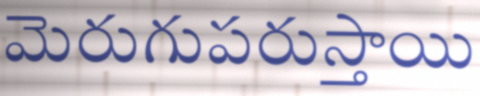
మెరుగుపరుస్తాయి